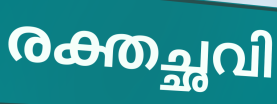
രക്തച്ഛവി